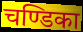
चण्डिका